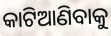
କାଟିଆଣିବାକୁ